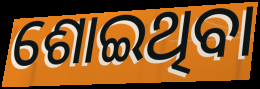
ଶୋଇଥିବା